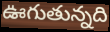
ఊగుతున్నది